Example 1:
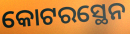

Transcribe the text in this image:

କୋଟରସ୍ଥେନ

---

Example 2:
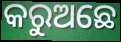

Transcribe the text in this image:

କରୁଅଛେ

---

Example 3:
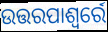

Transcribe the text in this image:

ଉତ୍ତରପାଶ୍ୱର୍ରେ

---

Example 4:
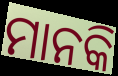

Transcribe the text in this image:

ମାନକି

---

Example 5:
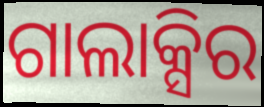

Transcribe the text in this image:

ଗାଲାକ୍ସିର